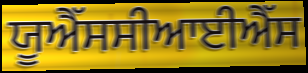
ਯੂਐੱਸਸੀਆਈਐੱਸ